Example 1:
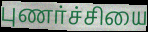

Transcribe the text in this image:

புணர்ச்சியை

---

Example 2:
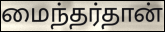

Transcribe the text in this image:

மைந்தர்தான்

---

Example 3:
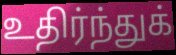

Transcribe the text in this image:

உதிர்ந்துக்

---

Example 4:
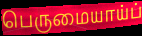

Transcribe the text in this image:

பெருமையாய்ப்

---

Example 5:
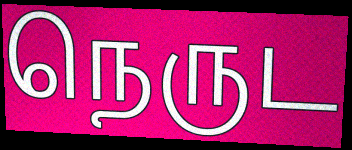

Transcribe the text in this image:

நெருட